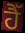
ਹੈੱ